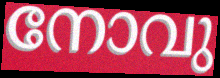
നോവു